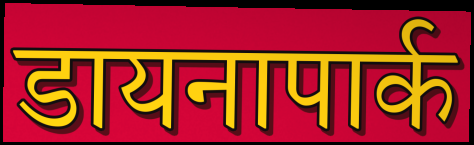
डायनापार्क